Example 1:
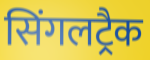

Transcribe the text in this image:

सिंगलट्रैक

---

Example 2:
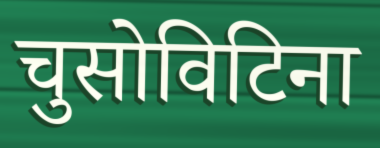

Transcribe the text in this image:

चुसोविटिना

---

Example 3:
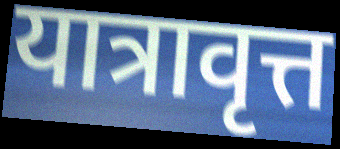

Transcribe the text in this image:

यात्रावृत्त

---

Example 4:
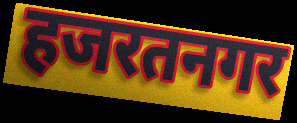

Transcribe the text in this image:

हजरतनगर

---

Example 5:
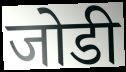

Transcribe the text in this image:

जोडी